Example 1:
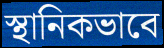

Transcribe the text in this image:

স্থানিকভাবে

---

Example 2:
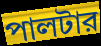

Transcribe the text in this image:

পালটার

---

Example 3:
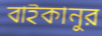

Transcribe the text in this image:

বাইকানুর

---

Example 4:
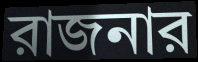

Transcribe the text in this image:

রাজনার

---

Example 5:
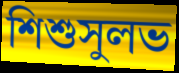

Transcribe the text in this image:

শিশুসুলভ